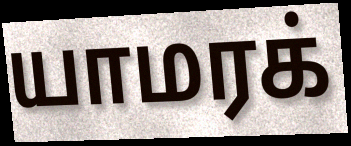
யாமரக்